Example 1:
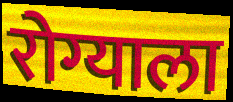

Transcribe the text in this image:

रोग्याला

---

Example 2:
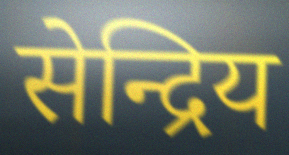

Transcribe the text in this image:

सेन्द्रिय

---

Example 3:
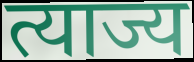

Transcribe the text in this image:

त्याज्य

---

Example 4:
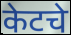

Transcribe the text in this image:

केटचे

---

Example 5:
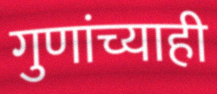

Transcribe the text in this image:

गुणांच्याही